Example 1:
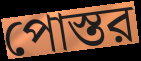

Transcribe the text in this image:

পোস্তর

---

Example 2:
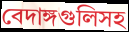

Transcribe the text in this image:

বেদাঙ্গগুলিসহ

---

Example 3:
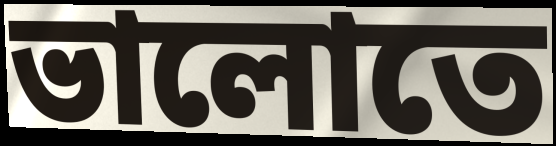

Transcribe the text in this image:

ভালোতে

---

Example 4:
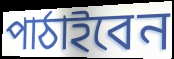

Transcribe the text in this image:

পাঠাইবেন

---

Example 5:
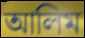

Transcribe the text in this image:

আলিম